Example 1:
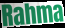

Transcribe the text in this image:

Rahma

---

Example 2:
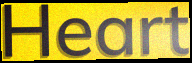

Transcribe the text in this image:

Heart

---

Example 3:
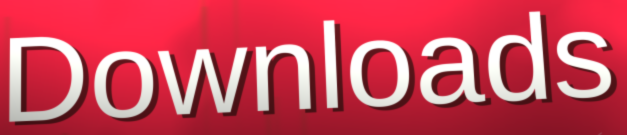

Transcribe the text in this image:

Downloads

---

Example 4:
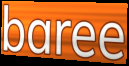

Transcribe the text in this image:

baree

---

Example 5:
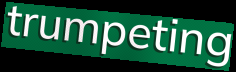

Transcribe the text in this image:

trumpeting